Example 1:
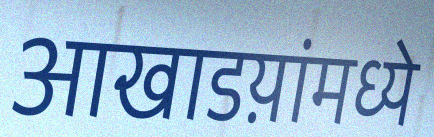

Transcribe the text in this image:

आखाडय़ांमध्ये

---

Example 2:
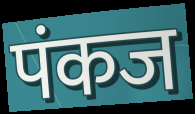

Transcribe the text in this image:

पंकज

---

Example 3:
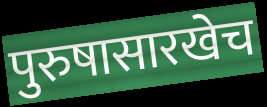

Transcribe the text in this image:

पुरुषासारखेच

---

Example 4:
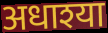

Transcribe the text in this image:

अधाश्या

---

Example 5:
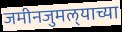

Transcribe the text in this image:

जमीनजुमल्याच्या